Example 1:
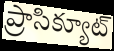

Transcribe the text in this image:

ప్రాసిక్యూట్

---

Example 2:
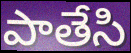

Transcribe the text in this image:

పాతేసి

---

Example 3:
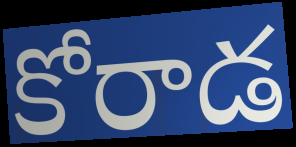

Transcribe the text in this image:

కోరాడ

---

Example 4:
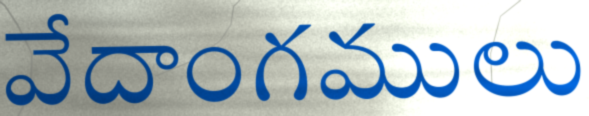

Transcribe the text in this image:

వేదాంగములు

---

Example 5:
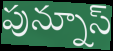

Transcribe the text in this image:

పున్నూస్